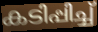
കടിപ്പിച്ച്